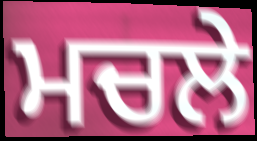
ਮਚਲੇ